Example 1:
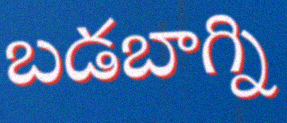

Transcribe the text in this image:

బడబాగ్ని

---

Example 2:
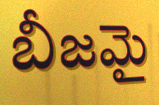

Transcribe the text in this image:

బీజమై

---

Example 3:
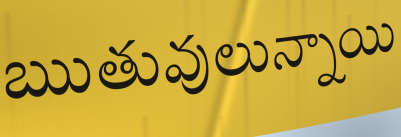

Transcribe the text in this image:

ఋతువులున్నాయి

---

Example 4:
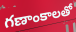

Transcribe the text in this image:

గణాంకాలతో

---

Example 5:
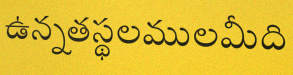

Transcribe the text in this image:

ఉన్నతస్థలములమీది